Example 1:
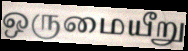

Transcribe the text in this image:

ஒருமையீறு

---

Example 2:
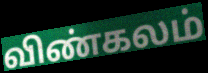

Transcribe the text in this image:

விண்கலம்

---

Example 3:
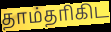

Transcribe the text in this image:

தாம்தரிகிட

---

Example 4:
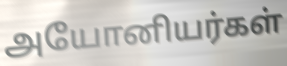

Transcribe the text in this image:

அயோனியர்கள்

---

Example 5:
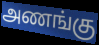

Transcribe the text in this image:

அணங்கு